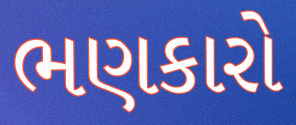
ભણકારો